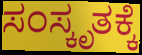
ಸಂಸ್ಕೃತಕ್ಕೆ